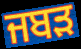
ਜਬੜ